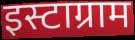
इस्टाग्राम